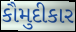
કૌમુદીકાર